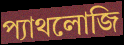
প্যাথলোজি